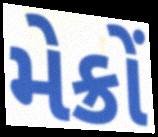
મેક્રોં